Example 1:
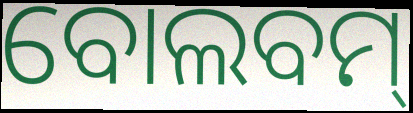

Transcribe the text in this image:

ବୋଲବମ୍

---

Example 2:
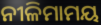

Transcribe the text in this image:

ନୀଳିମାମୟ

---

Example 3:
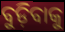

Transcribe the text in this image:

ବୁଡ଼ିବାକୁ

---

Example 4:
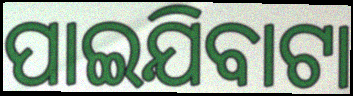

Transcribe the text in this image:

ପାଇଯିବାଟା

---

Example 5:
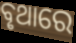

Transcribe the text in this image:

ବୃଥାରେ